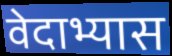
वेदाभ्यास